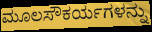
ಮೂಲಸೌಕರ್ಯಗಳನ್ನು